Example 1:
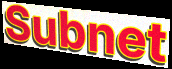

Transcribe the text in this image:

Subnet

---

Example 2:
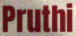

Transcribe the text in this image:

Pruthi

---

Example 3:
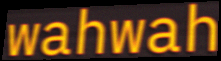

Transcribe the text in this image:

wahwah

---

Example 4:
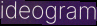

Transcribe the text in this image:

ideogram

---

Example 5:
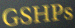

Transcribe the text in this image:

GSHPs